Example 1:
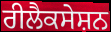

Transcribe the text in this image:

ਰੀਲੈਕਸੇਸ਼ਨ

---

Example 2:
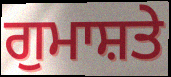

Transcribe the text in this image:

ਗੁਮਾਸ਼ਤੇ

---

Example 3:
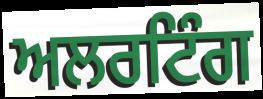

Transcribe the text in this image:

ਅਲਰਟਿੰਗ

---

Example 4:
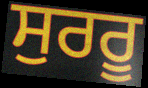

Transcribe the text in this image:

ਸੁਰਰੂ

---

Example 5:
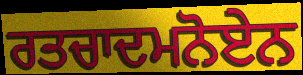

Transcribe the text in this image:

ਰਤਚਾਦਮਨੋਏਨ